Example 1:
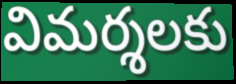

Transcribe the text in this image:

విమర్శలకు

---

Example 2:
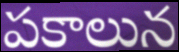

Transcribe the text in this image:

పకాలున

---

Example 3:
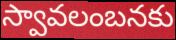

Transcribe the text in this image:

స్వావలంబనకు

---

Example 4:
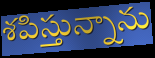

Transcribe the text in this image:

శపిస్తున్నాను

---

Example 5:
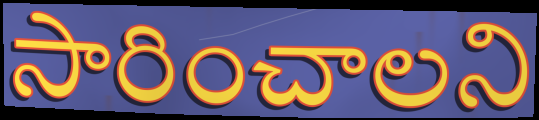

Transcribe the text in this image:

సారించాలని